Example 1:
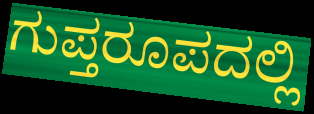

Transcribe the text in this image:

ಗುಪ್ತರೂಪದಲ್ಲಿ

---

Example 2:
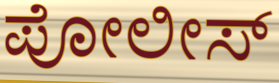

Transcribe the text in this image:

ಪೋಲೀಸ್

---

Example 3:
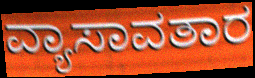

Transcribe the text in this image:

ವ್ಯಾಸಾವತಾರ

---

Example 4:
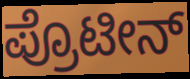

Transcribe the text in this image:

ಪ್ರೊಟೀನ್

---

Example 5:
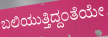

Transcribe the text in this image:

ಬಲಿಯುತ್ತಿದ್ದಂತೆಯೇ